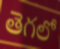
తెగలో